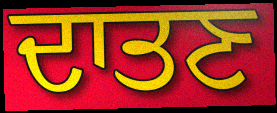
ਦਾਤਣ